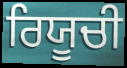
ਰਿਯੂਚੀ